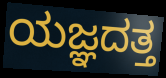
ಯಜ್ಞದತ್ತ